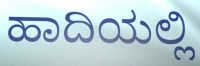
ಹಾದಿಯಲ್ಲಿ